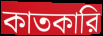
কাতকারি